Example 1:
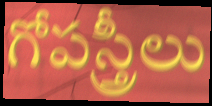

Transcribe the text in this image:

గోపస్త్రీలు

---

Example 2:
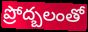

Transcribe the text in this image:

ప్రోద్బలంతో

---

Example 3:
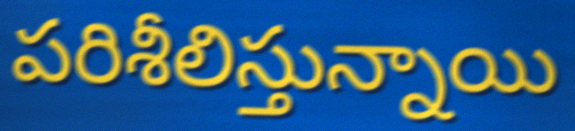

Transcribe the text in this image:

పరిశీలిస్తున్నాయి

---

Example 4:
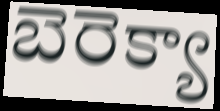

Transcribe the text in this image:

బెరెక్యా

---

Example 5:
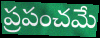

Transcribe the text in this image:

ప్రపంచమే